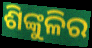
ଶିଙ୍କୁଳିର